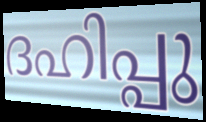
ദഹിപ്പു